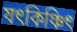
যৎকিঞ্চিৎ